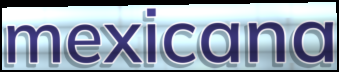
mexicana